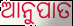
ଆନୁପାତ